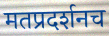
मतप्रदर्शनच